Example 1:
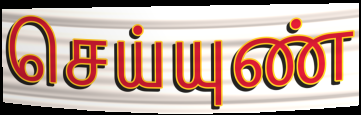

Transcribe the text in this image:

செய்யுண்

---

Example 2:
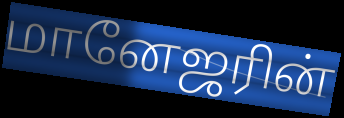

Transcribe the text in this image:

மானேஜரின்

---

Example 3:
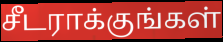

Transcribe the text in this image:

சீடராக்குங்கள்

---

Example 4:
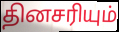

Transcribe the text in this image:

தினசரியும்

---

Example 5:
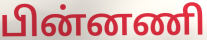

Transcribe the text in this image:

பின்னணி